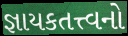
જ્ઞાયકતત્ત્વનો